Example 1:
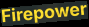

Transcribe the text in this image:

Firepower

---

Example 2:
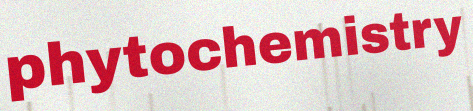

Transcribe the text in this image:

phytochemistry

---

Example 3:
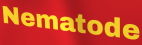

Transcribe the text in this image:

Nematode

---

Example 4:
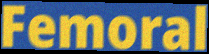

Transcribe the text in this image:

Femoral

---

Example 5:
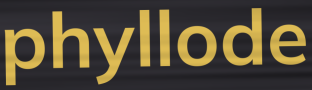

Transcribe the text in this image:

phyllode